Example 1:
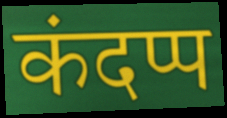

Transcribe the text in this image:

कंदप्प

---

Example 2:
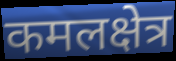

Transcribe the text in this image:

कमलक्षेत्र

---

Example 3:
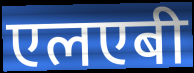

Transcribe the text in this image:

एलएबी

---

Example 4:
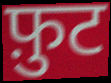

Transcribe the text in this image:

फ़ुट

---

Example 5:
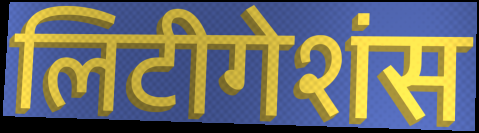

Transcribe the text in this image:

लिटीगेशंस